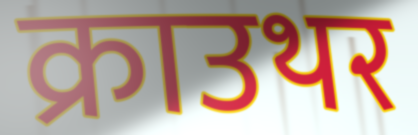
क्राउथर